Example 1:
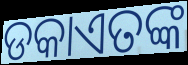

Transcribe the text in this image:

ଡକାଏତଙ୍କ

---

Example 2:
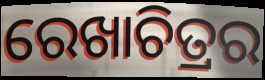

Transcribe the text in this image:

ରେଖାଚିତ୍ରର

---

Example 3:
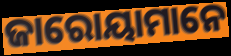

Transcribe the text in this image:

ଜାରୋୟାମାନେ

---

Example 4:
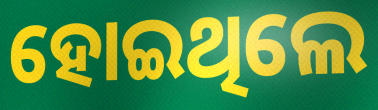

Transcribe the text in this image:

ହୋଇଥିଲେ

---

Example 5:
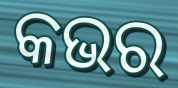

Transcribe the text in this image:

କଭର